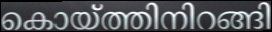
കൊയ്ത്തിനിറങ്ങി